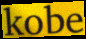
kobe